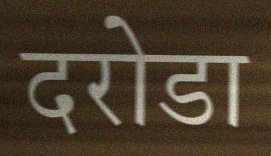
दरोडा